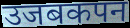
उजबकपन